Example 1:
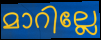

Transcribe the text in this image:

മാറില്ലേ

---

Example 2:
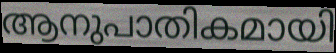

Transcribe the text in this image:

ആനുപാതികമായി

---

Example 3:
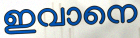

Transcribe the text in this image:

ഇവാനെ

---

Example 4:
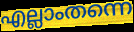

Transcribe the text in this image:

എല്ലാംതന്നെ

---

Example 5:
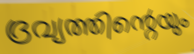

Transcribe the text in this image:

ദ്രവ്യത്തിന്റെയും